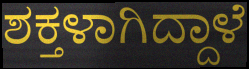
ಶಕ್ತಳಾಗಿದ್ದಾಳೆ